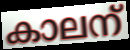
കാലന്